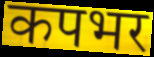
कपभर